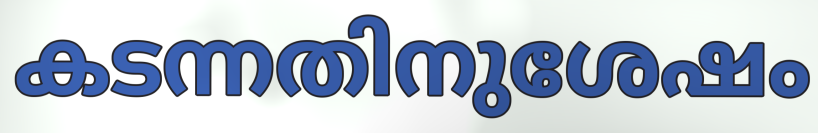
കടന്നതിനുശേഷം